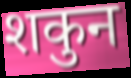
शकुन